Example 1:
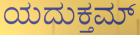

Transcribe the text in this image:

ಯದುಕ್ತಮ್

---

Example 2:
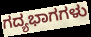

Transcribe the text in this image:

ಗದ್ಯಭಾಗಗಳು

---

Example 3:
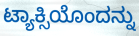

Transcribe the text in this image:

ಟ್ಯಾಕ್ಸಿಯೊಂದನ್ನು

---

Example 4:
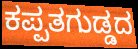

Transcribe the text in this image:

ಕಪ್ಪತಗುಡ್ಡದ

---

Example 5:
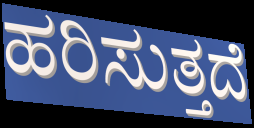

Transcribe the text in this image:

ಹರಿಸುತ್ತದೆ